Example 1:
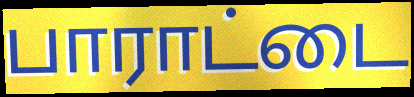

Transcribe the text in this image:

பாராட்டை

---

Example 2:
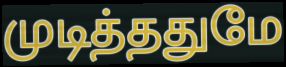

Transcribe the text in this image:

முடித்ததுமே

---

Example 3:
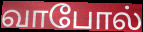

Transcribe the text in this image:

வாபோல்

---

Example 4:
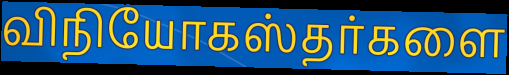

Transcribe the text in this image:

விநியோகஸ்தர்களை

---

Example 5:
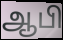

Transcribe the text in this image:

ஆபி